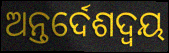
ଅନ୍ତର୍ଦେଶଦ୍ଵୟ